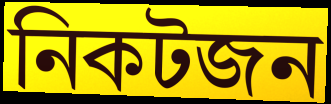
নিকটজন